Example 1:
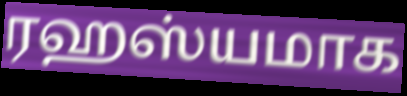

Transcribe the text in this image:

ரஹஸ்யமாக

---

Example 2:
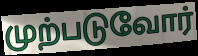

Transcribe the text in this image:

முற்படுவோர்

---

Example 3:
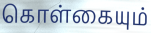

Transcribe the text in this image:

கொள்கையும்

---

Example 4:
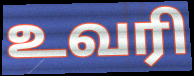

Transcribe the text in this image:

உவரி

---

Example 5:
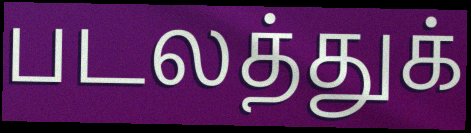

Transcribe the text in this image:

படலத்துக்